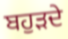
ਬਹੁੜਦੇ